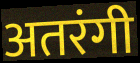
अतरंगी